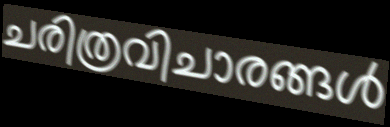
ചരിത്രവിചാരങ്ങൾ